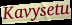
Kavysetu